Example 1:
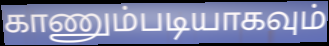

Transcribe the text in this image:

காணும்படியாகவும்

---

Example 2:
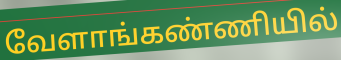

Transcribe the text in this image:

வேளாங்கண்ணியில்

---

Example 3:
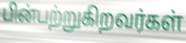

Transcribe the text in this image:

பின்பற்றுகிறவர்கள்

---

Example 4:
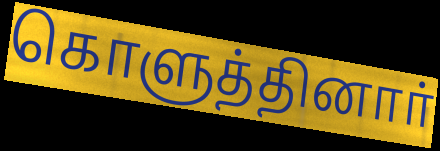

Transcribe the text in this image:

கொளுத்தினார்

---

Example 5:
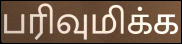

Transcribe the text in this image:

பரிவுமிக்க